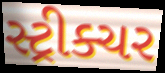
સ્ટ્રીક્ચર